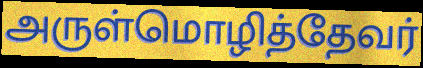
அருள்மொழித்தேவர்